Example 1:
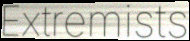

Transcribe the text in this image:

Extremists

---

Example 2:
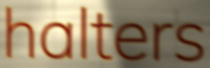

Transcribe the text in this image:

halters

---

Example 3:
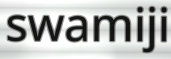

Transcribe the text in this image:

swamiji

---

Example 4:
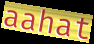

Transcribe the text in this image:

aahat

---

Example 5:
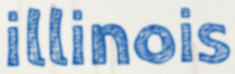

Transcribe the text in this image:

illinois